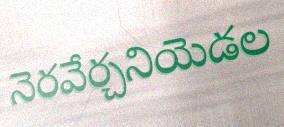
నెరవేర్చనియెడల